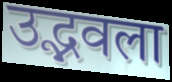
उद्भवला